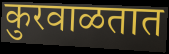
कुरवाळतात